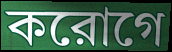
করোগে